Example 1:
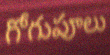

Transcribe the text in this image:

గోగుపూలు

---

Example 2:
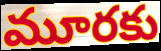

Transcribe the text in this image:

మూరకు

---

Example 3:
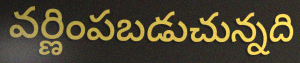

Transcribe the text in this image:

వర్ణింపబడుచున్నది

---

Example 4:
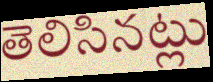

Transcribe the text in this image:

తెలిసినట్లు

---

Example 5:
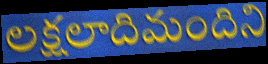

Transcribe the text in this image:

లక్షలాదిమందిని